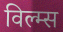
विल्म्स